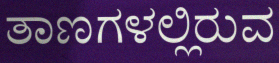
ತಾಣಗಳಲ್ಲಿರುವ